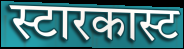
स्टारकास्ट